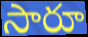
సారూ